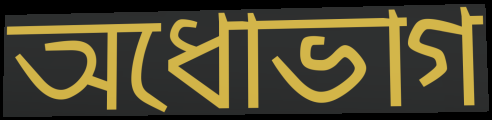
অধোভাগ